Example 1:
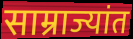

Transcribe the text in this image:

साम्राज्यांत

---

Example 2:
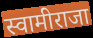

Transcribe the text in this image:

स्वामीराजा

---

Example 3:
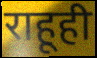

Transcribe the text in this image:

राहूही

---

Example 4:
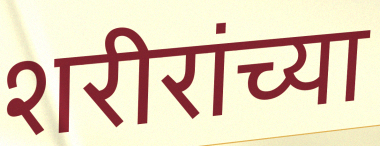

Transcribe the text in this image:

शरीरांच्या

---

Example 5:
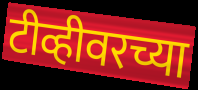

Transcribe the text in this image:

टीव्हीवरच्या